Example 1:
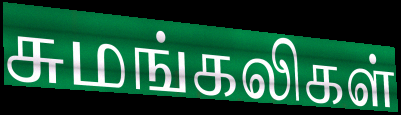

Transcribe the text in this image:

சுமங்கலிகள்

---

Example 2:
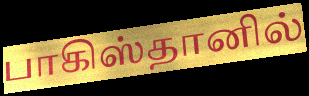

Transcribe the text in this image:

பாகிஸ்தானில்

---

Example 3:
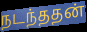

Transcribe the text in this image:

நடந்ததன்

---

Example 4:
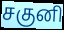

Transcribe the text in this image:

சகுனி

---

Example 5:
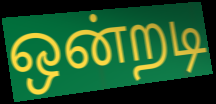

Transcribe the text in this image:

ஒன்றடி